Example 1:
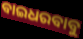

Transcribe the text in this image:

ବାଇଧରବାବୁ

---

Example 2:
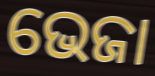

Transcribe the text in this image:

ଭେଜା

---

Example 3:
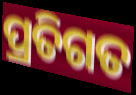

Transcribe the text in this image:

ପ୍ରତିଗତ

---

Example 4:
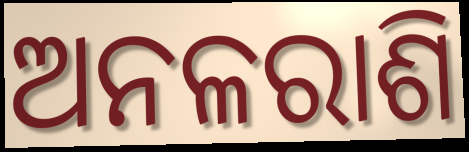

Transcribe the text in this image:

ଅନଳରାଶି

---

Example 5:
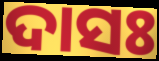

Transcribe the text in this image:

ଦାସଃ